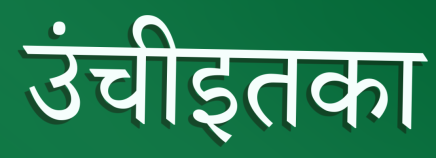
उंचीइतका